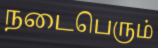
நடைபெரும்